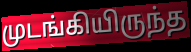
முடங்கியிருந்த